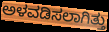
ಅಳವಡಿಸಲಾಗಿತ್ತು